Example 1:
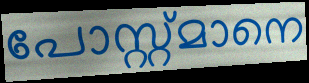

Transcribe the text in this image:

പോസ്റ്റ്മാനെ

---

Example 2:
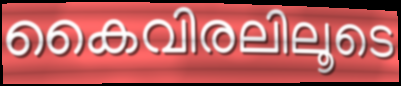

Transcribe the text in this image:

കൈവിരലിലൂടെ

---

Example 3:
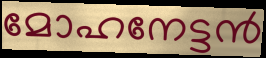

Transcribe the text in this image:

മോഹനേട്ടൻ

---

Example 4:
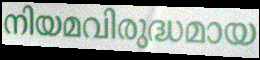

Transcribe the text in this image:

നിയമവിരുദ്ധമായ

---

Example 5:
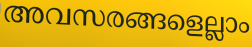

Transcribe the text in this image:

അവസരങ്ങളെല്ലാം